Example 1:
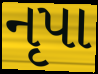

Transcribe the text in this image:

નૃપા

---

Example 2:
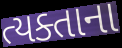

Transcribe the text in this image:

ત્યક્તાના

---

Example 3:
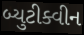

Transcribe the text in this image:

બ્યુટીક્વીન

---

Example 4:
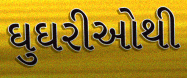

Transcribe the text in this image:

ઘુઘરીઓથી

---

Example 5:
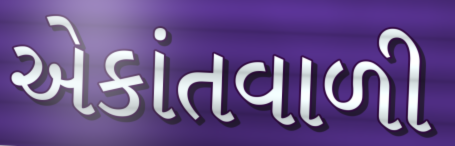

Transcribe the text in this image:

એકાંતવાળી